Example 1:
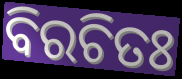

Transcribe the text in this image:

ବିରଚିତଃ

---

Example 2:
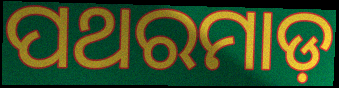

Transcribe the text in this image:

ପଥରମାଡ଼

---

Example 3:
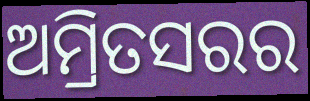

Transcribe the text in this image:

ଅମ୍ରିତସରର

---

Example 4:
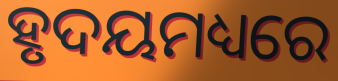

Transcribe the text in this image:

ହୃଦୟମଧ୍ୟରେ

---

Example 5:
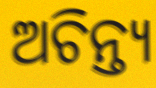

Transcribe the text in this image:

ଅଚିନ୍ତ୍ଯ